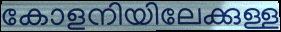
കോളനിയിലേക്കുള്ള